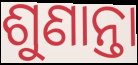
ଶୁଣାନ୍ତା